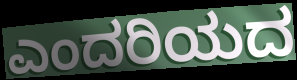
ಎಂದರಿಯದ